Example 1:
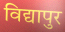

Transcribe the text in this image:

विद्यापुर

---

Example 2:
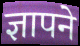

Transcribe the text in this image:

ज्ञापने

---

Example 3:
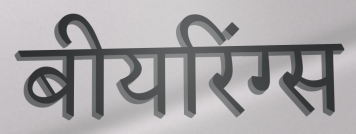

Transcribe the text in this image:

बीयरिंग्स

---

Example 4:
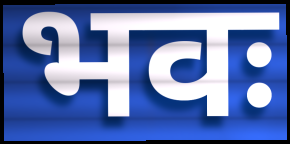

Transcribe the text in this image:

भवः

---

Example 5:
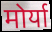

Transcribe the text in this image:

मोर्या